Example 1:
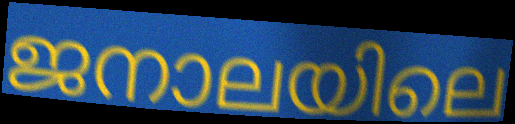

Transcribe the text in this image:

ജനാലയിലെ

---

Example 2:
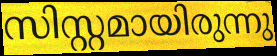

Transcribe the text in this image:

സിസ്റ്റമായിരുന്നു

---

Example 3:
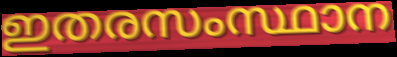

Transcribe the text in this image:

ഇതരസംസ്ഥാന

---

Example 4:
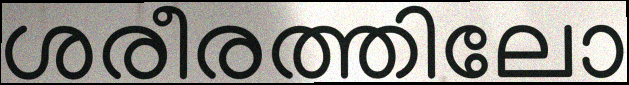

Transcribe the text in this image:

ശരീരത്തിലോ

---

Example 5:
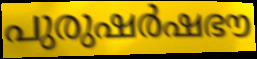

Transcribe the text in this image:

പുരുഷർഷഭൗ